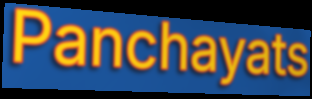
Panchayats